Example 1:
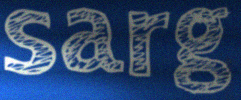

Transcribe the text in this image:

sarg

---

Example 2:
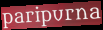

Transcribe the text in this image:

paripurna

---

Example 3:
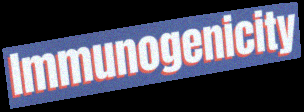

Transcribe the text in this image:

Immunogenicity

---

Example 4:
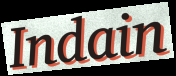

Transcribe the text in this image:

Indain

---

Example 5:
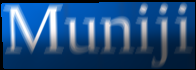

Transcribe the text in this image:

Muniji